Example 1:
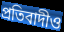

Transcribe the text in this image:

প্রতিবাদীও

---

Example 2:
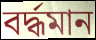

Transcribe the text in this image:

বর্দ্ধমান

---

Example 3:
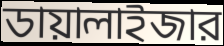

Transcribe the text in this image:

ডায়ালাইজার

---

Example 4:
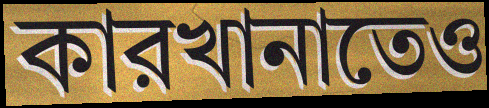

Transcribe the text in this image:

কারখানাতেও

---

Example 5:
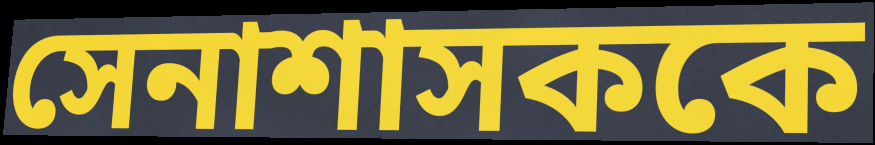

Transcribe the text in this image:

সেনাশাসককে